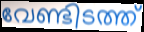
വേണ്ടിടത്ത്